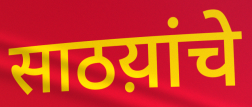
साठय़ांचे